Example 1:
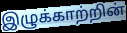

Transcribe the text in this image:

இழுக்காற்றின்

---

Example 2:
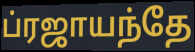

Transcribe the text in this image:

ப்ரஜாயந்தே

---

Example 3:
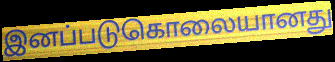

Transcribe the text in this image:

இனப்படுகொலையானது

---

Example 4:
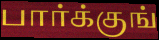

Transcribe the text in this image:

பார்க்குங்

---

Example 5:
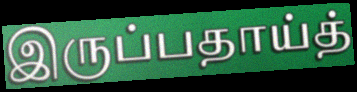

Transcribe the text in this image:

இருப்பதாய்த்